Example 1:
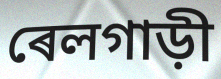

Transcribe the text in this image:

ৰেলগাড়ী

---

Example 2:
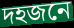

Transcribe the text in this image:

দহজনে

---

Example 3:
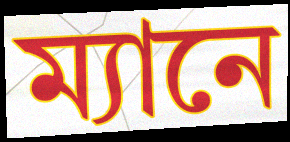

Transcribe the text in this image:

ম্যানে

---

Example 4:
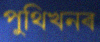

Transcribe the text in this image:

পুথিখনৰ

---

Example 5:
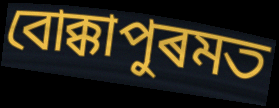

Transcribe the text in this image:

বোক্কাপুৰমত